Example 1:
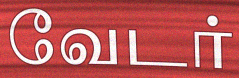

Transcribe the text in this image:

வேடர்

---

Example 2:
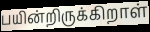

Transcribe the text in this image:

பயின்றிருக்கிறாள்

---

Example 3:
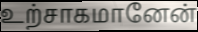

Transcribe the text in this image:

உற்சாகமானேன்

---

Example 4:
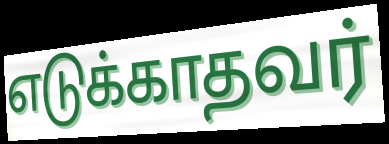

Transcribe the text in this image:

எடுக்காதவர்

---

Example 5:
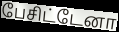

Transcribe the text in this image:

பேசிட்டேனா